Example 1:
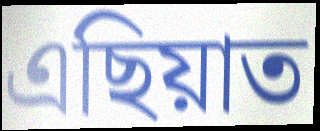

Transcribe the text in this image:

এছিয়াত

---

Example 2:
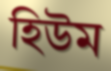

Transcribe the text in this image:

হিউম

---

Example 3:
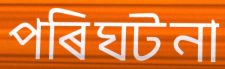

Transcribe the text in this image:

পৰিঘটনা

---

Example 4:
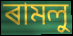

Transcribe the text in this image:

ৰামলু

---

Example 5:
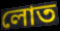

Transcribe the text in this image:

লোত